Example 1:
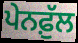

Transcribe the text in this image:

ਪੇਨਫ਼ੁੱਲ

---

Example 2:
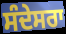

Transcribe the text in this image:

ਸੰਦੇਸਰਾ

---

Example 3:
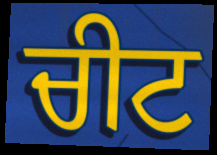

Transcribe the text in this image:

ਚੀਟ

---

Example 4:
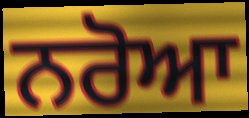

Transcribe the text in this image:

ਨਰੋਆ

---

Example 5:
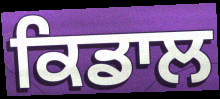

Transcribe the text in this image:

ਕਿਡਾਲ